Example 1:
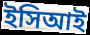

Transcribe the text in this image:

ইসিআই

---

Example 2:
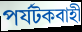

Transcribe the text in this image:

পর্যটকবাহী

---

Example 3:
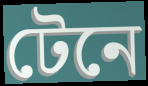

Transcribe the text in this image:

টেনে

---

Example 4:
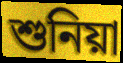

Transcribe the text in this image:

শুনিয়া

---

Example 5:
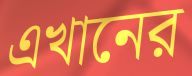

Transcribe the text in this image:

এখানের